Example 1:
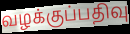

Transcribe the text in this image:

வழக்குப்பதிவு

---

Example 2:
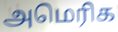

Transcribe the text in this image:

அமெரிக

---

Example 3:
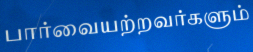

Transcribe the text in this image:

பார்வையற்றவர்களும்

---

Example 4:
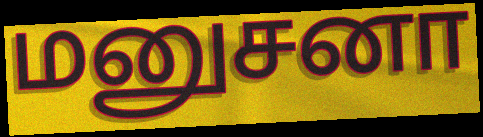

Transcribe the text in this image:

மனுசனா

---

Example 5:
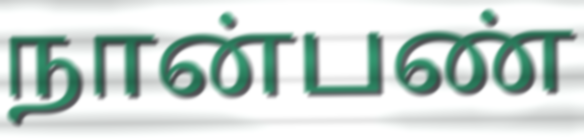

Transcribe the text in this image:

நான்பண்